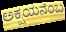
ಅಕ್ಷಯನೆಂಬ